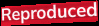
Reproduced